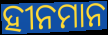
ହୀନମାନ